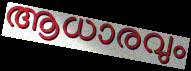
ആധാരവും